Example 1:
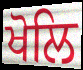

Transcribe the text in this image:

ਖੋਲਿ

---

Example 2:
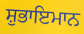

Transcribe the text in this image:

ਸ਼ੁਭਾਇਮਾਨ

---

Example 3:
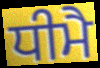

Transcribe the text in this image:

ਧੀਮੈ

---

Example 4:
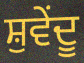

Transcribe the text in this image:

ਸ਼ੁਵੇਂਦੂ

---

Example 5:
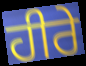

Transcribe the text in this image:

ਹੀਰੇ